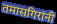
तमासगिरांनी